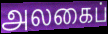
அலகைப்